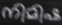
നിമിഷ